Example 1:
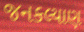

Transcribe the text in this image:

જનકલ્યાણ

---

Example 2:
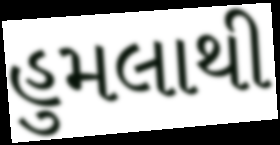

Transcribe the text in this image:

હુમલાથી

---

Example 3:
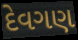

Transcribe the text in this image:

દેવગણ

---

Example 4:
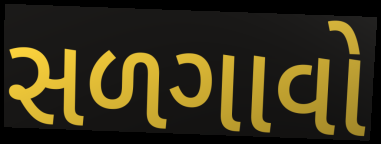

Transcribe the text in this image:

સળગાવો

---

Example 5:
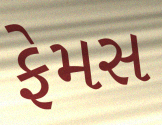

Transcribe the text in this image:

ફેમસ